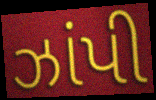
ઝાંપી